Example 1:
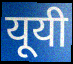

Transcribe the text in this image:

यूयी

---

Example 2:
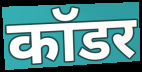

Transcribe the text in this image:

कॉडर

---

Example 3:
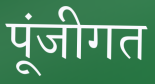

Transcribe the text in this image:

पूंजीगत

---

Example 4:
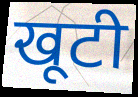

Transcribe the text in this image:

खूटी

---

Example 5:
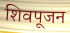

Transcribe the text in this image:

शिवपूजन